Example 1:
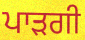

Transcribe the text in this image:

ਪਾੜਗੀ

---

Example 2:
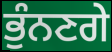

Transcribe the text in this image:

ਭੁੰਨਣਗੇ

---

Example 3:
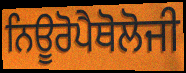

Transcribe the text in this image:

ਨਿਊਰੋਪੈਥੋਲੋਜੀ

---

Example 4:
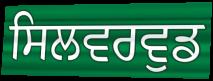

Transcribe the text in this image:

ਸਿਲਵਰਵੁਡ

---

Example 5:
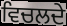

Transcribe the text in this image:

ਵਿਚਲਦੇ